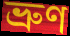
ভ্ৰুণ